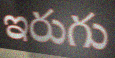
ఇరుగు